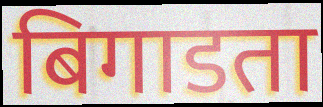
बिगाडता